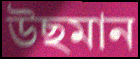
উছমান